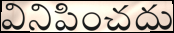
వినిపించదు